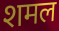
शमल